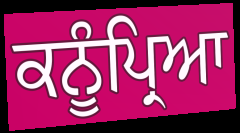
ਕਨੂੰਪ੍ਰਿਆ